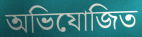
অভিযোজিত